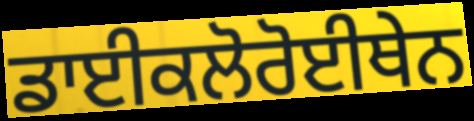
ਡਾਈਕਲੋਰੋਈਥੇਨ